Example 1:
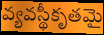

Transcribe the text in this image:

వ్యవస్థీకృతమై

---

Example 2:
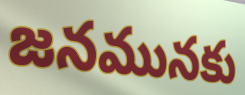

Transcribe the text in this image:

జనమునకు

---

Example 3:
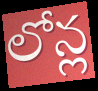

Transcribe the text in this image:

లోన్ల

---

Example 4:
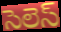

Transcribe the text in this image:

సెలెస్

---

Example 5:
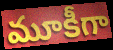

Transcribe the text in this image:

మూకీగా